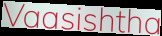
Vaasishtha